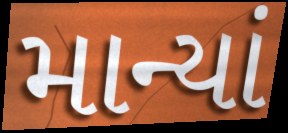
માન્યાં